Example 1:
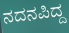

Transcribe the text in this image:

ನದನಪಿದ್ದ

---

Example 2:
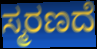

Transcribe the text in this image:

ಸ್ಮರಣದೆ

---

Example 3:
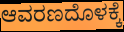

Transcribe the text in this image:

ಆವರಣದೊಳಕ್ಕೆ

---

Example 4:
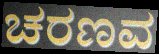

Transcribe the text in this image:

ಚರಣವ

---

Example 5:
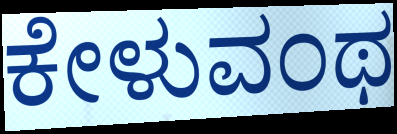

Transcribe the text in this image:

ಕೇಳುವಂಥ